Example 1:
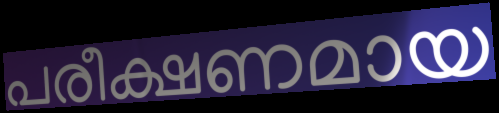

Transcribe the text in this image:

പരീക്ഷണമായ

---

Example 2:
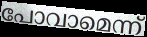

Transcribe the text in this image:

പോവാമെന്ന്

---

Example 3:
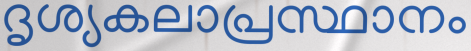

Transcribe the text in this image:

ദൃശ്യകലാപ്രസ്ഥാനം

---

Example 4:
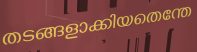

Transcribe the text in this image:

തടങ്ങളാക്കിയതെന്തേ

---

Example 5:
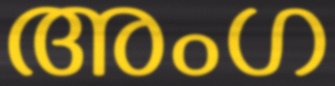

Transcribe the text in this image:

അംഗ